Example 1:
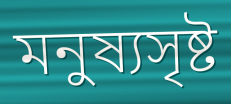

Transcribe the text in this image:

মনুষ্যসৃষ্ট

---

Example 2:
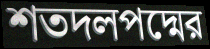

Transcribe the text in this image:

শতদলপদ্মের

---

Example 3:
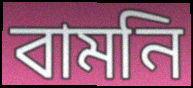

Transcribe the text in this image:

বামনি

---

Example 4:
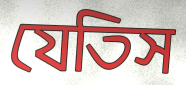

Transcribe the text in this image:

যেতিস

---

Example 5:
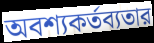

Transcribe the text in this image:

অবশ্যকর্তব্যতার